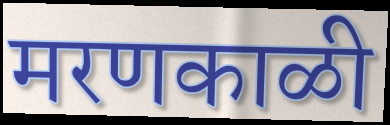
मरणकाळी